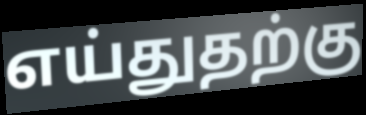
எய்துதற்கு